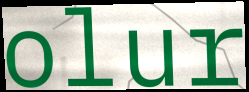
olur